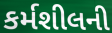
કર્મશીલની